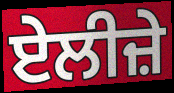
ਏਲੀਜ਼ੇ